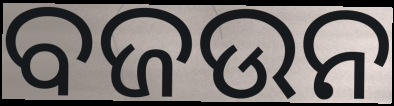
ବଜଉନ